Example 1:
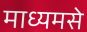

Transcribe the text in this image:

माध्यमसे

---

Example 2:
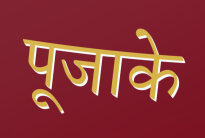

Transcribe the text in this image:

पूजाके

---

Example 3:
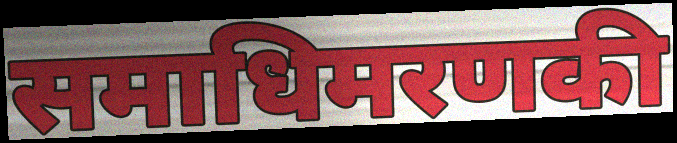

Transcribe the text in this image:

समाधिमरणकी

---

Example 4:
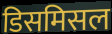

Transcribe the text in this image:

डिसमिसल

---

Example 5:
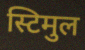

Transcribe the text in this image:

स्टिमुल